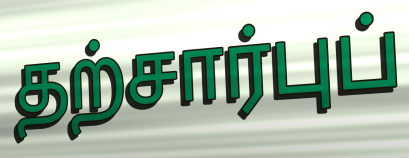
தற்சார்புப்